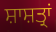
ਸ਼ਾਸ਼ਤ੍ਰਾਂ